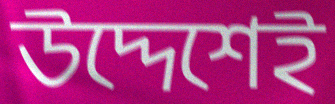
উদ্দেশেই